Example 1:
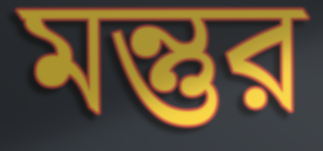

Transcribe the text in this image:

মন্তুর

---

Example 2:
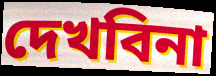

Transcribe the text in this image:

দেখবিনা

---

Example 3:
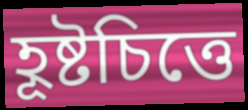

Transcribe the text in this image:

হূষ্টচিত্তে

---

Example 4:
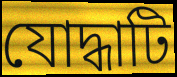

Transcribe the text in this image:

যোদ্ধাটি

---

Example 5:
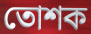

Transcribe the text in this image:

তোশক